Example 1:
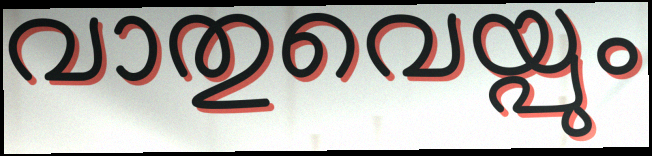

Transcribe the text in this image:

വാതുവെയ്പും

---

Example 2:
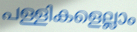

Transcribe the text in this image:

പള്ളികളെല്ലാം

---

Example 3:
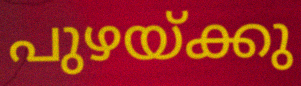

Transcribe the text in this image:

പുഴയ്ക്കു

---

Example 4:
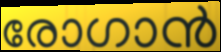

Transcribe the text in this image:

രോഗാൻ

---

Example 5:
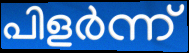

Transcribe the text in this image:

പിളർന്ന്